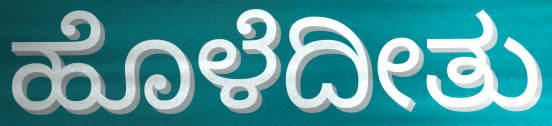
ಹೊಳೆದೀತು